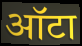
ऑटा